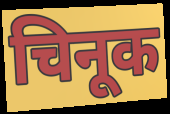
चिनूक